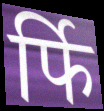
र्फि